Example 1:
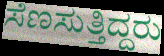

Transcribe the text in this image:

ಸೆಣಸುತ್ತಿದ್ದರು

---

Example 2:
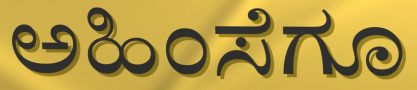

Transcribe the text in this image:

ಅಹಿಂಸೆಗೂ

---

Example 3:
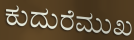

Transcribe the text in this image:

ಕುದುರೆಮುಖ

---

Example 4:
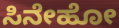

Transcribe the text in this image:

ಸಿನೇಹೋ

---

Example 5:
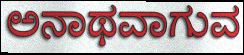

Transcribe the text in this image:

ಅನಾಥವಾಗುವ